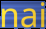
nai